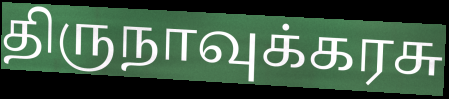
திருநாவுக்கரசு